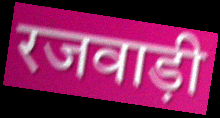
रजवाड़ी